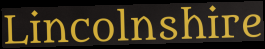
Lincolnshire